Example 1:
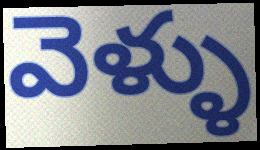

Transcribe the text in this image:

వెళ్ళు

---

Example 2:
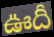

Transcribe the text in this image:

ఊదీ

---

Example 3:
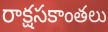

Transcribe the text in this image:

రాక్షసకాంతలు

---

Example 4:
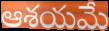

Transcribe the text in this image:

ఆశయమే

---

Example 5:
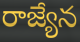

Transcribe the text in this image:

రాజ్యేన